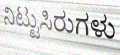
ನಿಟ್ಟುಸಿರುಗಳು